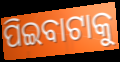
ପିଇବାଟାକୁ